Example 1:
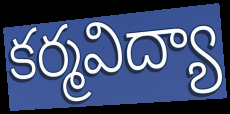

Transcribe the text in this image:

కర్మవిద్యా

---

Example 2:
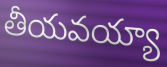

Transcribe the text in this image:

తీయవయ్యా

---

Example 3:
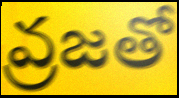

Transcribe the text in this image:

వ్రజతో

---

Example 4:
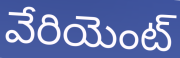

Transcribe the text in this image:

వేరియెంట్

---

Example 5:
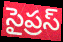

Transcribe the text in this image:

సైప్రస్